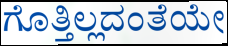
ಗೊತ್ತಿಲ್ಲದಂತೆಯೇ